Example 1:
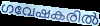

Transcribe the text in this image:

ഗവേഷകരിൽ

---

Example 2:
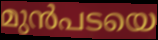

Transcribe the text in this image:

മുൻപടയെ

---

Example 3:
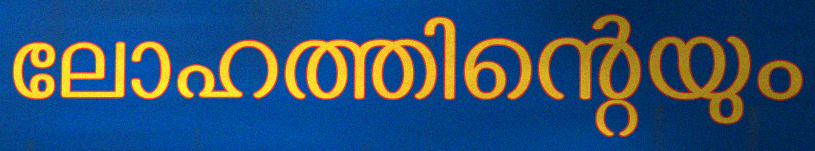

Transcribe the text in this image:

ലോഹത്തിന്റെയും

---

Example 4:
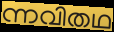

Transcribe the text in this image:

ന്നവിതഥ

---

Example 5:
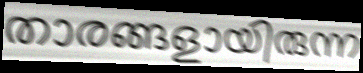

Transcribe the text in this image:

താരങ്ങളായിരുന്ന